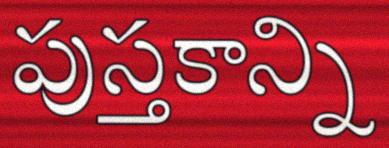
పుస్తకాన్ని